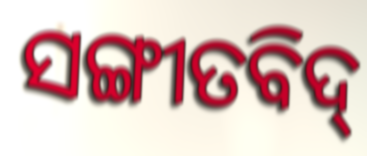
ସଙ୍ଗୀତବିଦ୍